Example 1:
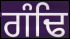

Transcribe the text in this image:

ਗੰਢਿ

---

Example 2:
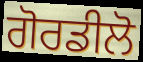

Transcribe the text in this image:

ਗੋਰਡੀਲੋ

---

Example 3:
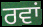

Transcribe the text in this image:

ਰਵਾਂ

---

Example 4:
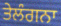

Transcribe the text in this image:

ਤੇਲੰਗਨਾ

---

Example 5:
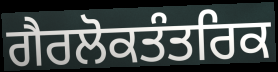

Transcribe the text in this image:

ਗੈਰਲੋਕਤੰਤਰਿਕ